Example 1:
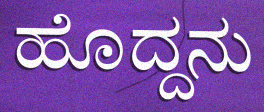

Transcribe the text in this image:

ಹೊದ್ದನು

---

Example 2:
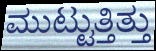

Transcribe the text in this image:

ಮುಟ್ಟುತ್ತಿತ್ತು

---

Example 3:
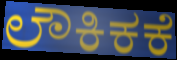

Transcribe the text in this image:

ಲೌಕಿಕಕೆ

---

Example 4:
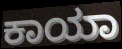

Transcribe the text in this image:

ಕಾಯಾ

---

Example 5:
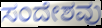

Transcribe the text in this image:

ಸಂದೇಶವು